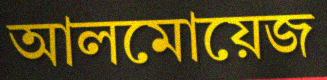
আলমোয়েজ